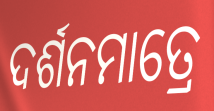
ଦର୍ଶନମାତ୍ରେ